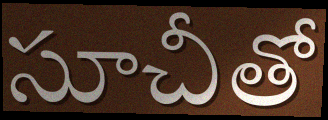
సూచీతో